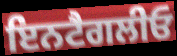
ਇਨਟੈਗਲੀਓ